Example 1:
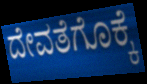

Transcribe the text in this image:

ದೇವತೆಗೊಕ್ಕೆ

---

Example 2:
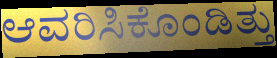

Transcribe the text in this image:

ಆವರಿಸಿಕೊಂಡಿತ್ತು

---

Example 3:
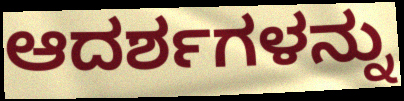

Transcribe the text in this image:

ಆದರ್ಶಗಳನ್ನು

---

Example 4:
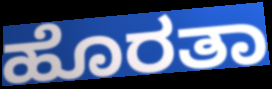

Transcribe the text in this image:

ಹೊರತಾ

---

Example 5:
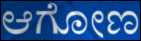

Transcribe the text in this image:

ಆಗೋಣ